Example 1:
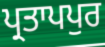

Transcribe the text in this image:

ਪ੍ਰਤਾਪਪੁਰ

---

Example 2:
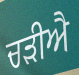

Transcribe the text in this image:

ਚੜੀਐ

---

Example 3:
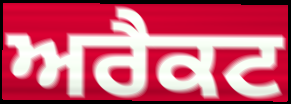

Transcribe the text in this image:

ਅਰੈਕਟ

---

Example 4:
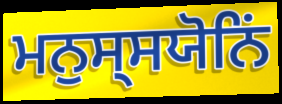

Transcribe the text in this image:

ਮਨੁਸ੍ਸਯੋਨਿਂ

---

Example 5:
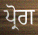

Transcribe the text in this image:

ਪ੍ਰੋਗ